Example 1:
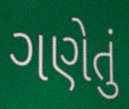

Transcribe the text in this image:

ગણેતું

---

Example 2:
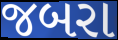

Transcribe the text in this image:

જબરા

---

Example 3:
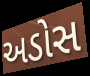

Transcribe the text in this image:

અડોસ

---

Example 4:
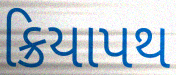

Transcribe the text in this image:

ક્રિયાપથ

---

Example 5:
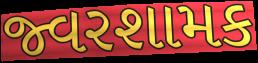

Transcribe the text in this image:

જ્વરશામક